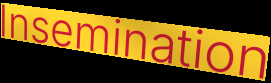
Insemination